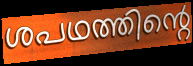
ശപഥത്തിന്റെ